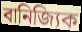
বানিজ্যিক